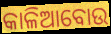
କାଳିଆବୋଉ